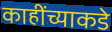
काहींच्याकडे